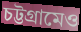
চট্টগ্রামেও